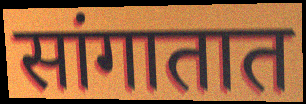
सांगातात